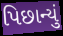
પિછાન્યું